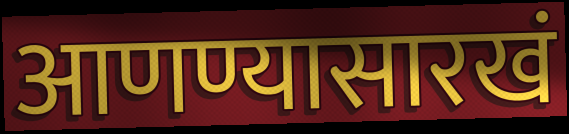
आणण्यासारखं